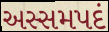
અસ્સમપદં